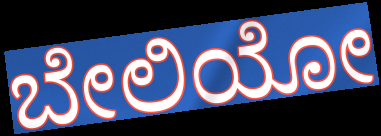
ಬೇಲಿಯೋ